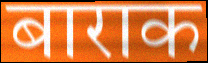
बाराक